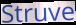
Struve